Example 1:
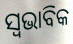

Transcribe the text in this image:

ସ୍ଵଭାବିକ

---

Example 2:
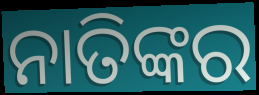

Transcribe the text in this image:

ନାତିଙ୍କର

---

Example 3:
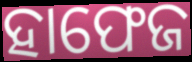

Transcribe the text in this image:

ହାଫେଜ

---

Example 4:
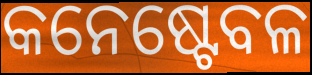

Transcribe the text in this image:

କନେଷ୍ଟେବଳ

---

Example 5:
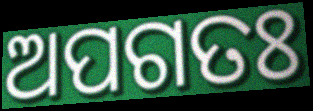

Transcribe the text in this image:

ଅପଗତଃ